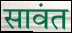
सावंत